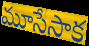
మూసేసాక